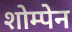
शोम्पेन